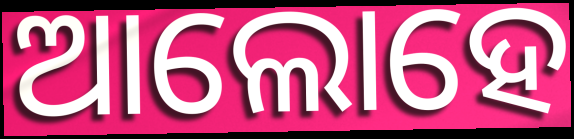
ଆଲୋହେ